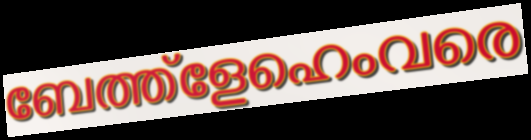
ബേത്ത്ളേഹെംവരെ